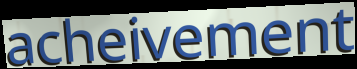
acheivement